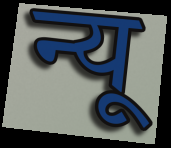
न्यू